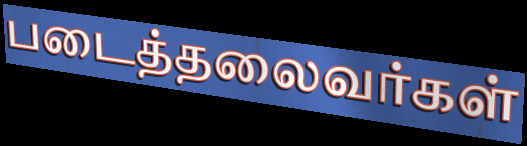
படைத்தலைவர்கள்